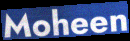
Moheen